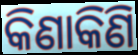
କିଣାକିଣି